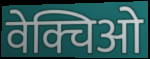
वेक्चिओ